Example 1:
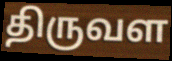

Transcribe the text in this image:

திருவள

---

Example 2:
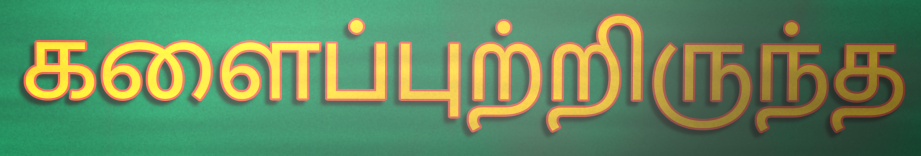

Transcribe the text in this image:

களைப்புற்றிருந்த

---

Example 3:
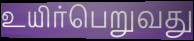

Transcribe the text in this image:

உயிர்பெறுவது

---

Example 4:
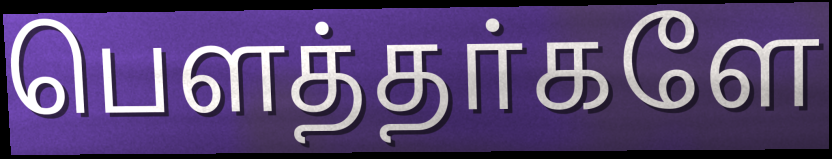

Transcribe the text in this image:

பௌத்தர்களே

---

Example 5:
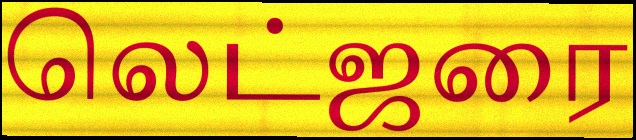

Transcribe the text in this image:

லெட்ஜரை